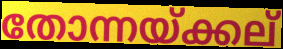
തോന്നയ്ക്കല്